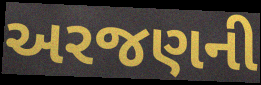
અરજણની